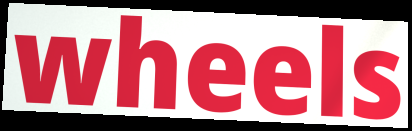
wheels